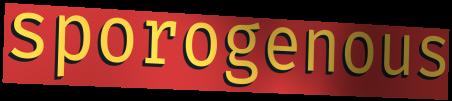
sporogenous